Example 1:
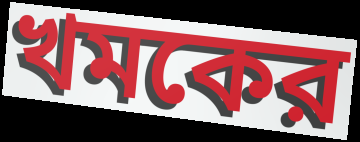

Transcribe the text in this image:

খমকের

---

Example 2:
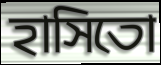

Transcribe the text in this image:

হাসিতো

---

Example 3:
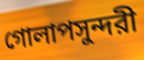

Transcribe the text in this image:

গোলাপসুন্দরী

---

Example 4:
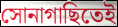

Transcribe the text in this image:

সোনাগাছিতেই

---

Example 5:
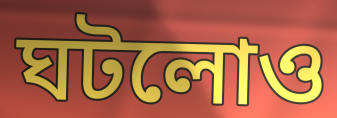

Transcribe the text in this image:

ঘটলোও